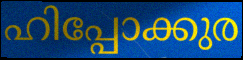
ഹിപ്പോക്കുര